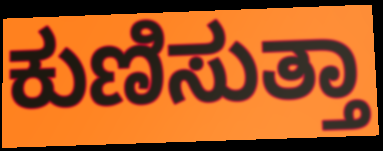
ಕುಣಿಸುತ್ತಾ